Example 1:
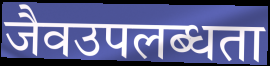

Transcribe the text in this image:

जैवउपलब्धता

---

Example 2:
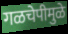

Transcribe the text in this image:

गळचेपीमुळे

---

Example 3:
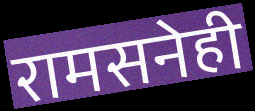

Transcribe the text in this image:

रामसनेही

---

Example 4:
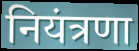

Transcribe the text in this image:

नियंत्रणा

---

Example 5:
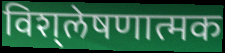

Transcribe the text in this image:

विश्लेषणात्मक